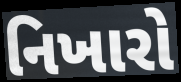
નિખારો